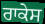
ਰਾਕੇਸ